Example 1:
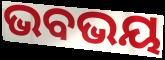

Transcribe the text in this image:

ଭବଭୟ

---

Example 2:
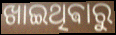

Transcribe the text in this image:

ଖାଇଥିଵାରୁ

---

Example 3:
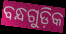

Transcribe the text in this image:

ବନ୍ଧଗୁଡ଼ିକ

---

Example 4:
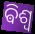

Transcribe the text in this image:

ଵିଶ୍ୱ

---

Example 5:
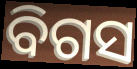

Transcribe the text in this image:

ବିଗସ